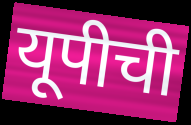
यूपीची